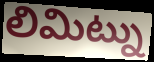
లిమిట్ను